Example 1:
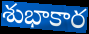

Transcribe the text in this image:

శుభాకార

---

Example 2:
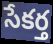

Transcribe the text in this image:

సేకర్త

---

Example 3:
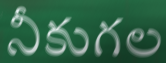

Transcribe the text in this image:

నీకుగల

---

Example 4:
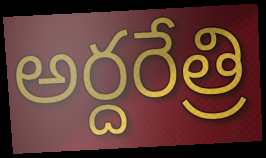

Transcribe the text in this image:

అర్దరేత్రి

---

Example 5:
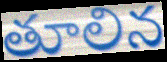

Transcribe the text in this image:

తూలిన